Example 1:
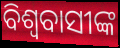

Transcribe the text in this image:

ବିଶ୍ଵବାସୀଙ୍କ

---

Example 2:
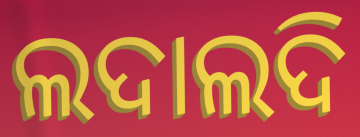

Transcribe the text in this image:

ଲଦାଲଦି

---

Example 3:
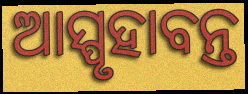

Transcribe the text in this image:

ଆସ୍ପୃହାବନ୍ତ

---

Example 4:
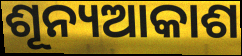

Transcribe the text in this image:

ଶୂନ୍ୟଆକାଶ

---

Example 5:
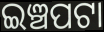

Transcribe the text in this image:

ଇଞ୍ଚପଟା